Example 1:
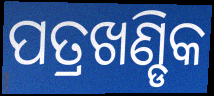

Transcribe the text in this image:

ପତ୍ରଖଣ୍ଡିକ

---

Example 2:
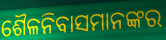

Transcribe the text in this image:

ଶୈଳନିବାସମାନଙ୍କର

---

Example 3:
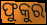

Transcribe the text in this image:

ଫୁକୁର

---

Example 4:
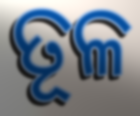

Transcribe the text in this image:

ତୂଳ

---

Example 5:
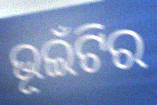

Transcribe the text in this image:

ଭୂଇଁଟିର